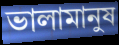
ভালামানুষ